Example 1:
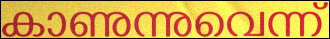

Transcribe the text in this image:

കാണുന്നുവെന്ന്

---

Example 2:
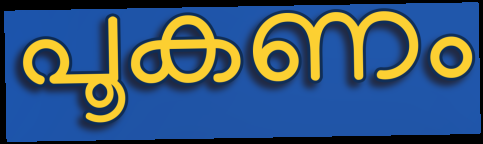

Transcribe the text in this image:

പൂകണം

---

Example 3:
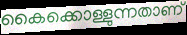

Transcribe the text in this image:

കൈക്കൊള്ളുന്നതാണ്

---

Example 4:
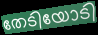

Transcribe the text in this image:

തേടിയോടി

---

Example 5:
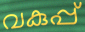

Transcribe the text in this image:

വകുപ്പ്